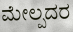
ಮೇಲ್ಪದರ